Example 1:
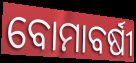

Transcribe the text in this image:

ବୋମାବର୍ଷୀ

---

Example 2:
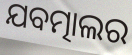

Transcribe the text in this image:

ଯବତ୍ମାଲର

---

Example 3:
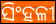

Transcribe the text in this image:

ସିଂହଳୀ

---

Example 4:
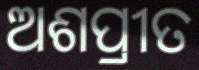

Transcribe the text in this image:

ଅଶପ୍ରୀତ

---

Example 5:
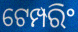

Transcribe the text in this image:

ଟେମ୍ପରିଂ